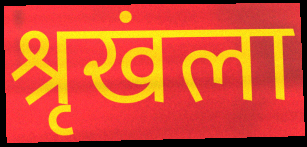
श्रृखंला